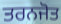
ਤਰਨਜੋਤ